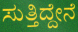
ಸುತ್ತಿದ್ದೇನೆ